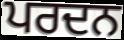
ਪਰਦਨ